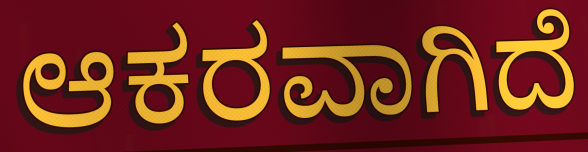
ಆಕರವಾಗಿದೆ